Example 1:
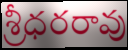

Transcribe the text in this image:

శ్రీధరరావు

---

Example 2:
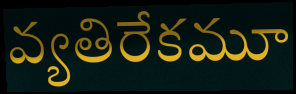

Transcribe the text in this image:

వ్యతిరేకమూ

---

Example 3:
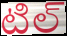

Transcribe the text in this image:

టిల్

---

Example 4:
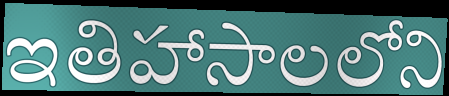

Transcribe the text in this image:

ఇతిహాసాలలోని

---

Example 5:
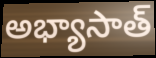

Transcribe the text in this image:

అభ్యాసాత్